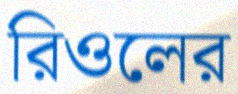
রিওলের